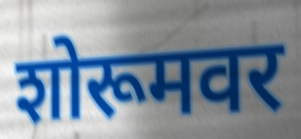
शोरूमवर